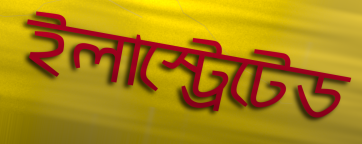
ইলাস্ট্রেটেড